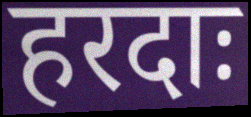
हरदाः